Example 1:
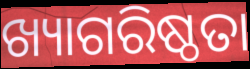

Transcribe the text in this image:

ଖ୍ୟାଗରିଷ୍ଠତା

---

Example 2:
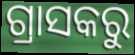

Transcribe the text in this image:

ଗ୍ରାସକରୁ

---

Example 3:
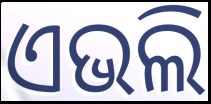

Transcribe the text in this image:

ଏଭଲି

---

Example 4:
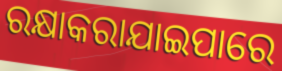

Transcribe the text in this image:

ରକ୍ଷାକରାଯାଇପାରେ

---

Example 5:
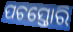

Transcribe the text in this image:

ପଚସ୍ତୋରି